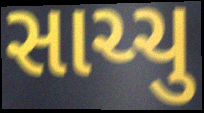
સાચ્ચુ